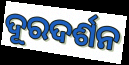
ଦୂରଦର୍ଶନ